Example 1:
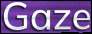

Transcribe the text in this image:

Gaze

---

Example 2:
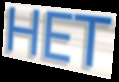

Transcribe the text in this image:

HET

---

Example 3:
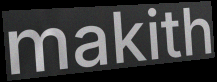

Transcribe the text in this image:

makith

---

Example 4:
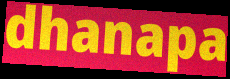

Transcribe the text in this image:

dhanapa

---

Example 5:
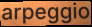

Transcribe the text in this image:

arpeggio